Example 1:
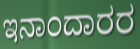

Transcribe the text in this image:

ಇನಾಂದಾರರ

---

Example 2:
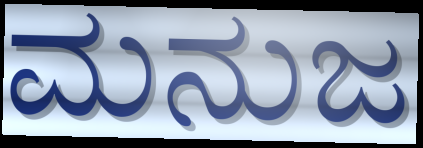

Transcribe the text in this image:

ಮನುಜ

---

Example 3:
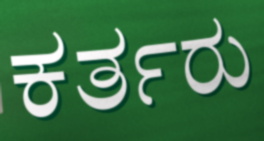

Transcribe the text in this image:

ಕರ್ತರು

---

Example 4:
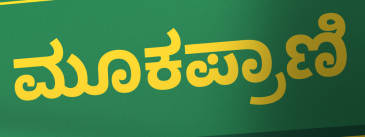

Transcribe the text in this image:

ಮೂಕಪ್ರಾಣಿ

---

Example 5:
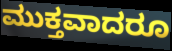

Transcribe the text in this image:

ಮುಕ್ತವಾದರೂ